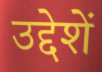
उद्देशें